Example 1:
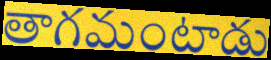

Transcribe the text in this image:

తాగమంటాడు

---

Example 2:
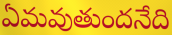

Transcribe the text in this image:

ఏమవుతుందనేది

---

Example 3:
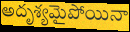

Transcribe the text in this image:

అదృశ్యమైపోయినా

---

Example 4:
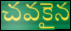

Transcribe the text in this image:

చవకైన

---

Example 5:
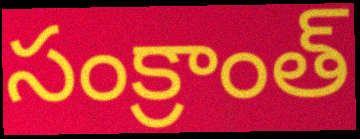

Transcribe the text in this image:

సంక్రాంత్